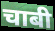
चाबी